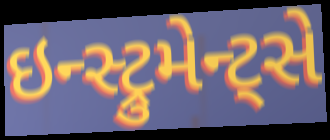
ઇન્સ્ટ્રુમેન્ટ્સે